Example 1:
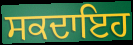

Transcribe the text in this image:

ਸਕਦਾਇਹ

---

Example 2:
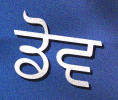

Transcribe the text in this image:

ਡੋਵ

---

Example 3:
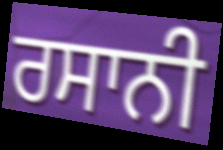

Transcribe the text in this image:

ਰਸਾਨੀ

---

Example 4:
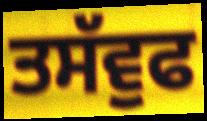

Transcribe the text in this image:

ਤਸੱਵੁਫ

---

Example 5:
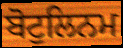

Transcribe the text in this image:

ਬੋਟੁਲਿਨਮ